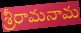
శ్రీరామనామ